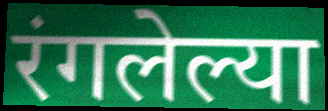
रंगलेल्या